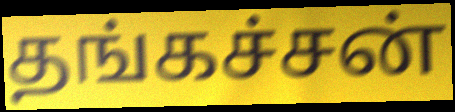
தங்கச்சன்